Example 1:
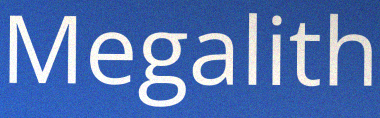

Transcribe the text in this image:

Megalith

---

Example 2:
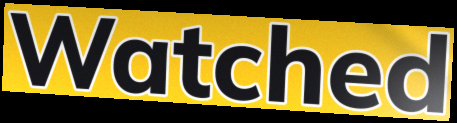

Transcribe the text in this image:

Watched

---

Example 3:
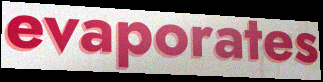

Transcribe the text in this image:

evaporates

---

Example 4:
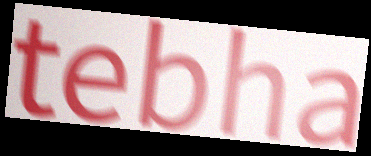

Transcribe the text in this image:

tebha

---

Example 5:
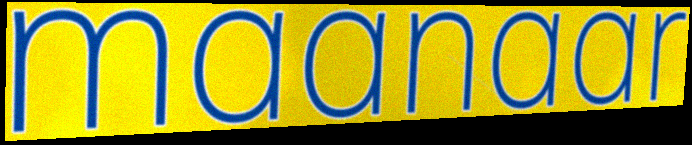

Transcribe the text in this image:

maanaar